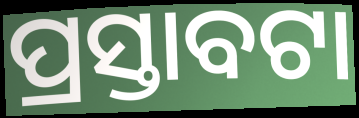
ପ୍ରସ୍ତାବଟା